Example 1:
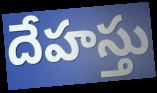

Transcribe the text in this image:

దేహస్తు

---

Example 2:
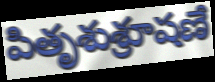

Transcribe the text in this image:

పితృశుశ్రూషణే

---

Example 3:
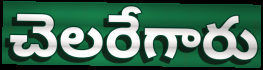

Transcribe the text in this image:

చెలరేగారు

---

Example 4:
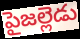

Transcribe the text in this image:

పైజల్లెడు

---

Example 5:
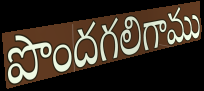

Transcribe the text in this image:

పొందగలిగాము